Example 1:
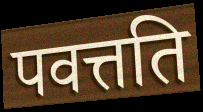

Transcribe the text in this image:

पवत्तति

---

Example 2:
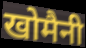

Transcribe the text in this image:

खोमैनी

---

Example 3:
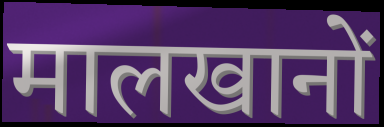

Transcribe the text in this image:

मालखानों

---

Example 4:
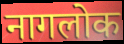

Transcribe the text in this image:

नागलोक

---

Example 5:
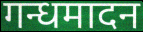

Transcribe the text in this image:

गन्धमादन